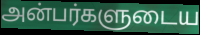
அன்பர்களுடைய